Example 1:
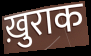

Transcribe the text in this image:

ख़ुराक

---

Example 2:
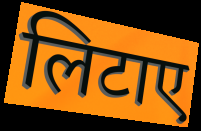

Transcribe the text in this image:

लिटाए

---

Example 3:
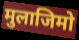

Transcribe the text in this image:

मुलाजिमो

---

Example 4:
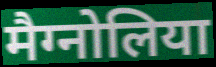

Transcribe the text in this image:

मैग्नोलिया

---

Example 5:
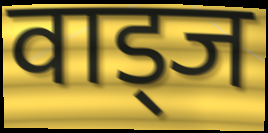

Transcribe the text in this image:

वाड्ज